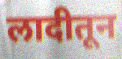
लादीतून